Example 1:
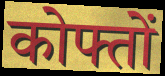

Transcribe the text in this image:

कोफ्तों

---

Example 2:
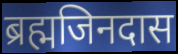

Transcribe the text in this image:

ब्रह्मजिनदास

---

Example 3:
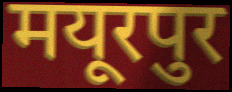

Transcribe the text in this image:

मयूरपुर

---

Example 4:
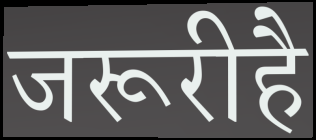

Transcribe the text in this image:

जरूरीहै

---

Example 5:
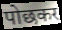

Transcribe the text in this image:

पोछकर